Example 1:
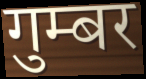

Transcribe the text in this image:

गुम्बर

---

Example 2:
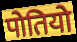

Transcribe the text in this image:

पोतियो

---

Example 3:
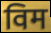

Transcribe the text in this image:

विम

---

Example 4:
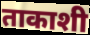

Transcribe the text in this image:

ताकाशी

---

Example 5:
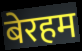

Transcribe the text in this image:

बेरहम